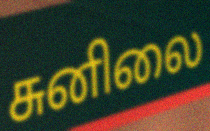
சுனிலை